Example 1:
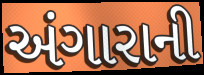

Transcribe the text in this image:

અંગારાની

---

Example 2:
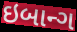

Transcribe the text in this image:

ઇબાન્ગ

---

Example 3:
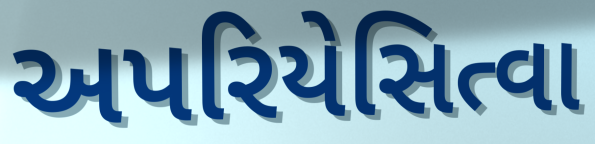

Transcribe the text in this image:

અપરિયેસિત્વા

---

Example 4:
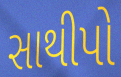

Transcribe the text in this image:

સાથીપો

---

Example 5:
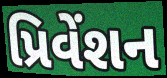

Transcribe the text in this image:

પ્રિવેંશન